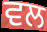
ਵਲ